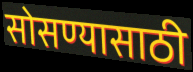
सोसण्यासाठी